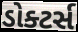
ડોક્ટર્સ